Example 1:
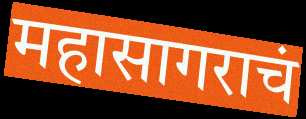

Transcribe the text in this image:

महासागराचं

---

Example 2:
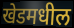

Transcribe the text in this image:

खेडमधील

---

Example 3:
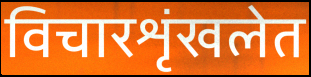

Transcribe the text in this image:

विचारशृंखलेत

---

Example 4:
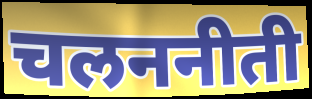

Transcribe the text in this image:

चलननीती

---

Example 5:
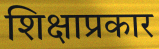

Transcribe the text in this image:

शिक्षाप्रकार